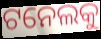
ଟନେଲକୁ